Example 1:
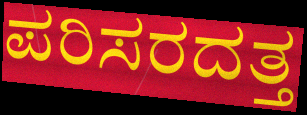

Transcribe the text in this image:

ಪರಿಸರದತ್ತ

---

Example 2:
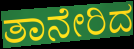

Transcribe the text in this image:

ತಾನೇರಿದ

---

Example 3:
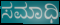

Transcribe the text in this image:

ಸಮಾಧಿ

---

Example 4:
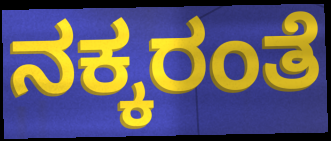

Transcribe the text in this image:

ನಕ್ಕರಂತೆ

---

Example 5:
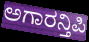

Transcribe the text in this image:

ಅಗಾರನ್ತಿಪಿ